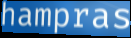
hampras